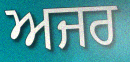
ਅਜਰ